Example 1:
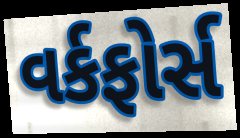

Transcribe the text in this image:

વર્કફોર્સ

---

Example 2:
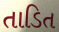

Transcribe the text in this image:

તાડિત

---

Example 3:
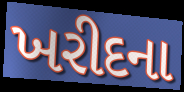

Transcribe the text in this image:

ખરીદના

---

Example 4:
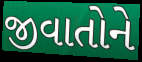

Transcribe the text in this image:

જીવાતોને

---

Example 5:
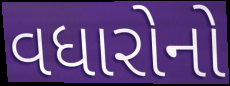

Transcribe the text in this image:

વધારોનો